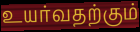
உயர்வதற்கும்